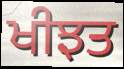
ਖੀਝਤ